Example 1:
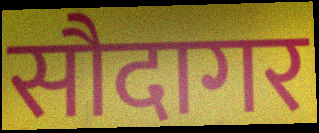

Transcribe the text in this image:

सौदागर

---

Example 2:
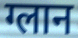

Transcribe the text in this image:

ग्लान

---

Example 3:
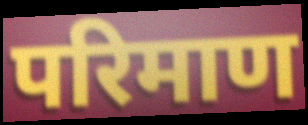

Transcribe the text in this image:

परिमाण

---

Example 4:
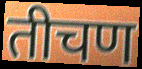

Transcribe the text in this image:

तीचण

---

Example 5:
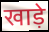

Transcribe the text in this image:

खाड़े